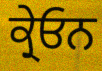
ਕ੍ਰੇਓਨ